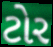
ટોર